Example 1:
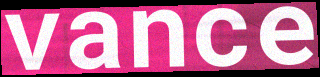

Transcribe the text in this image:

vance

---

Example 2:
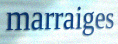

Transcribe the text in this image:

marraiges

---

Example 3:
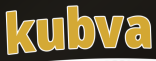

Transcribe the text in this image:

kubva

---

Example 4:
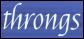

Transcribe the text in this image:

throngs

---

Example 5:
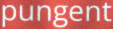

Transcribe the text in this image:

pungent